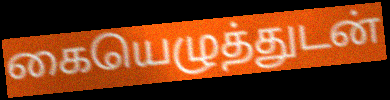
கையெழுத்துடன்